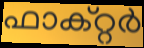
ഫാക്റ്റർ